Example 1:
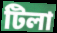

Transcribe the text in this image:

টিলা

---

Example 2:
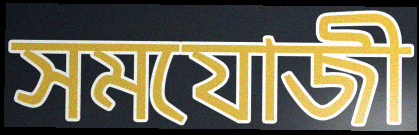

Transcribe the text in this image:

সমযোজী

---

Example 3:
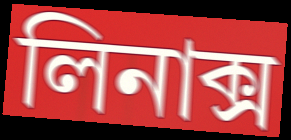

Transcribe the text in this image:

লিনাক্স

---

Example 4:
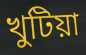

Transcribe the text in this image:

খুটিয়া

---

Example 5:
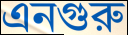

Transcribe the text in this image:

এনগুরু